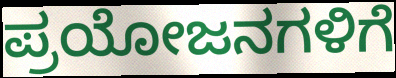
ಪ್ರಯೋಜನಗಳಿಗೆ